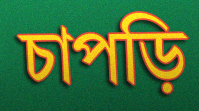
চাপড়ি